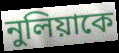
নুলিয়াকে